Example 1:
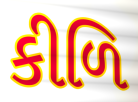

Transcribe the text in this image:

કીળિ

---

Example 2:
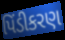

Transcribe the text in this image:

પિંડીકરણ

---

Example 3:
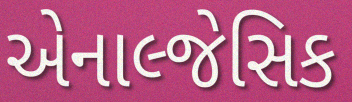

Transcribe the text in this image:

એનાલ્જેસિક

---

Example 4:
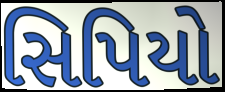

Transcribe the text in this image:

સિપિયો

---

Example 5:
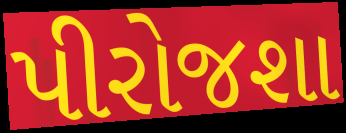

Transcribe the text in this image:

પીરોજશા